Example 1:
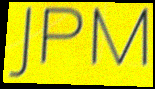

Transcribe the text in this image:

JPM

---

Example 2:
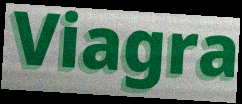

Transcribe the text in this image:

Viagra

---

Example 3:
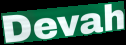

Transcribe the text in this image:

Devah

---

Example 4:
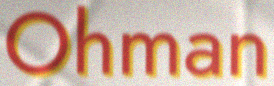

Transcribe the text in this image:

Ohman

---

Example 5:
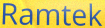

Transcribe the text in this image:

Ramtek